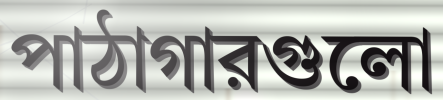
পাঠাগারগুলো